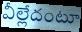
వీల్లేదంటూ